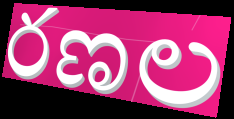
రణల